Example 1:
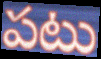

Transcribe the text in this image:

పటు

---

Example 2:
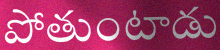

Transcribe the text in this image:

పోతుంటాడు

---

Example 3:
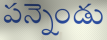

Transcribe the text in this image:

పన్నెండు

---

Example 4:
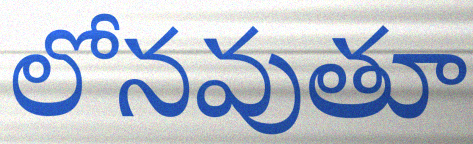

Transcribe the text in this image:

లోనవుతూ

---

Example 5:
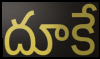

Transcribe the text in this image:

దూకే